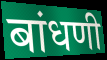
बांधणी